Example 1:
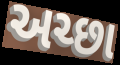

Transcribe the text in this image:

અચ્છા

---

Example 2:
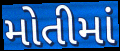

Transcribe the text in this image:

મોતીમાં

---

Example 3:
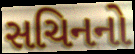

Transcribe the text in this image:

સચિનનો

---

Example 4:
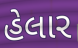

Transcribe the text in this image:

હેલાર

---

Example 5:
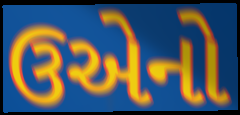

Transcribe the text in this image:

ઉએનો